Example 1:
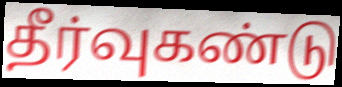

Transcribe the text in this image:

தீர்வுகண்டு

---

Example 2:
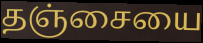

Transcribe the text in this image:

தஞ்சையை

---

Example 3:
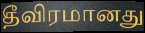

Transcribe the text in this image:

தீவிரமானது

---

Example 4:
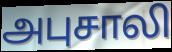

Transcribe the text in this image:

அபுசாலி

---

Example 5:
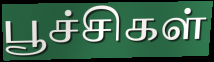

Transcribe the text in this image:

பூச்சிகள்